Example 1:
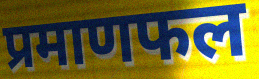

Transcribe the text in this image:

प्रमाणफल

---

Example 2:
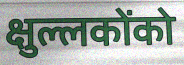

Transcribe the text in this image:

क्षुल्लकोंको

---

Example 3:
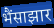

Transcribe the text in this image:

भैंसाझार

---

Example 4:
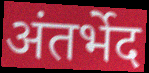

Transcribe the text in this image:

अंतर्भेद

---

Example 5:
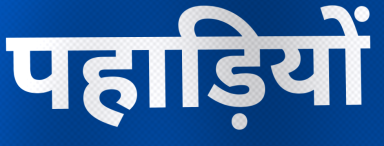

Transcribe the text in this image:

पहाड़ियों